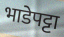
भाडेपट्टा